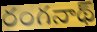
రంగనాథ్